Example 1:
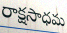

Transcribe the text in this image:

రాక్షసాధమ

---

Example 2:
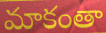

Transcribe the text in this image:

మాకంతా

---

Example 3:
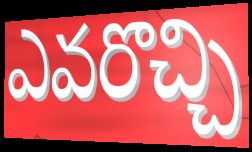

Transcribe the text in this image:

ఎవరొచ్చి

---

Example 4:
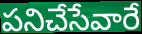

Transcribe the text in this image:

పనిచేసేవారే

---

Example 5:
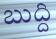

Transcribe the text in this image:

బుద్ది